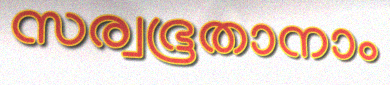
സര്വഭൂതാനാം